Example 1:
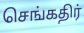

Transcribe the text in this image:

செங்கதிர்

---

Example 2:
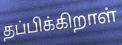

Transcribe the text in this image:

தப்பிக்கிறாள்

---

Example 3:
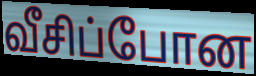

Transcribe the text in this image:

வீசிப்போன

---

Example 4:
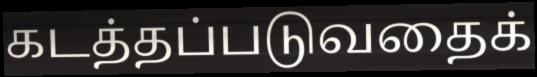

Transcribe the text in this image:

கடத்தப்படுவதைக்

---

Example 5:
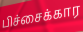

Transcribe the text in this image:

பிச்சைக்கார